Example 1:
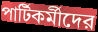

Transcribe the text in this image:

পার্টিকর্মীদের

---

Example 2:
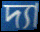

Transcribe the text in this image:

দ্যা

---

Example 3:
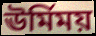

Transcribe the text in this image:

ঊর্মিময়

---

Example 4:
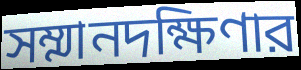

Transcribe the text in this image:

সম্মানদক্ষিণার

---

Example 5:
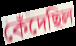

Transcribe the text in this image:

কেঁদেছিল